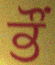
ਭੌਂ